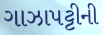
ગાઝાપટ્ટીની